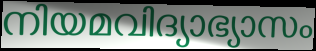
നിയമവിദ്യാഭ്യാസം